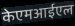
केएमआईएल